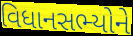
વિધાનસભ્યોને